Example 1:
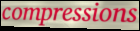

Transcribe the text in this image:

compressions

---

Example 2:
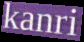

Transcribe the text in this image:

kanri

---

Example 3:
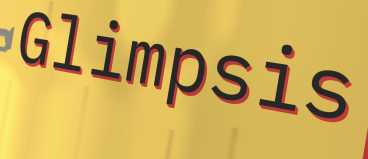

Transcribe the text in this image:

Glimpsis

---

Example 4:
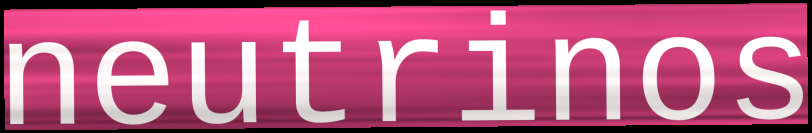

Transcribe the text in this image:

neutrinos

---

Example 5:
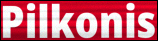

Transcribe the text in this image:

Pilkonis